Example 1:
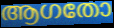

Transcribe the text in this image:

ആഗതോ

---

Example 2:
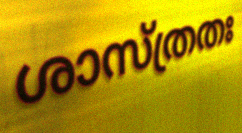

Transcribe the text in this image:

ശാസ്ത്രതഃ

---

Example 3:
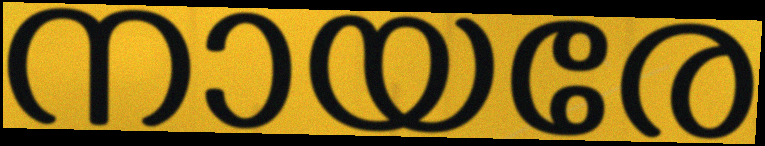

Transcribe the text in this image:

നായരേ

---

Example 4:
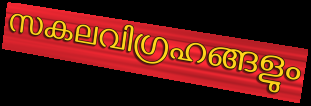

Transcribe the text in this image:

സകലവിഗ്രഹങ്ങളും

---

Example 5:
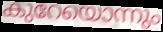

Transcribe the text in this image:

കുറേയൊന്നും